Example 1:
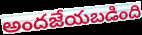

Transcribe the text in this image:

అందజేయబడింది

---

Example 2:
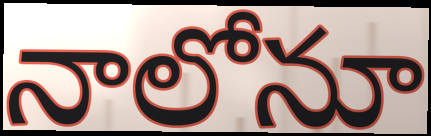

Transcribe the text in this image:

నాలోనూ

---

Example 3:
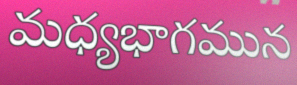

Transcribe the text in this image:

మధ్యభాగమున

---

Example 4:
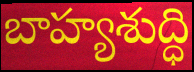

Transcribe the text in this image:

బాహ్యశుద్ధి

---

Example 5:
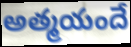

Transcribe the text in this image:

అత్మయందే